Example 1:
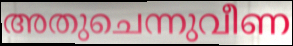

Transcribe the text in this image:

അതുചെന്നുവീണ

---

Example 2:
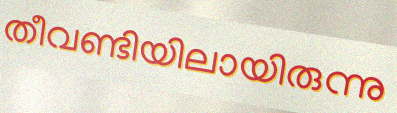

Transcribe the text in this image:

തീവണ്ടിയിലായിരുന്നു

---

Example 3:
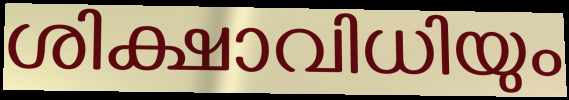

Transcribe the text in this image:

ശിക്ഷാവിധിയും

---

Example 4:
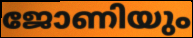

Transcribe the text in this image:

ജോണിയും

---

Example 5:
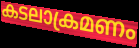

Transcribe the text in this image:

കടലാക്രമണം